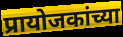
प्रायोजकांच्या